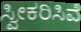
ಸ್ವೀಕರಿಸಿವೆ